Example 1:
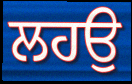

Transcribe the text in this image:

ਲਹਉ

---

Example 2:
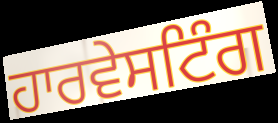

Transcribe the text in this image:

ਹਾਰਵੇਸਟਿੰਗ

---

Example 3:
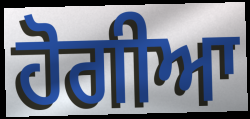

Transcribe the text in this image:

ਹੋਗੀਆ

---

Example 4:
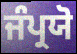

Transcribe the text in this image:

ਜੰਪ੍ਰਯੋ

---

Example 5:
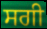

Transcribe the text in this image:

ਸਗੀ